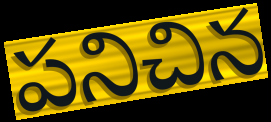
పనిచిన